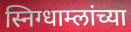
स्निग्धाम्लांच्या